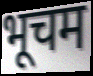
भूचम